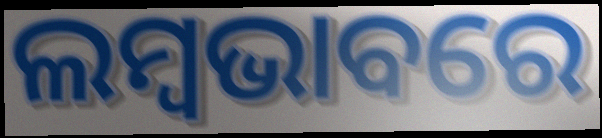
ଲମ୍ବଭାବରେ